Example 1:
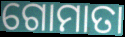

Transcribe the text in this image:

ଗୋମାତା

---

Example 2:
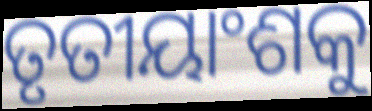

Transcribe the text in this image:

ତୃତୀୟାଂଶକୁ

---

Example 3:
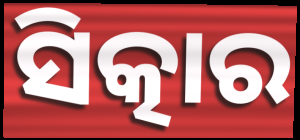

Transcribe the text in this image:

ସିତ୍କାର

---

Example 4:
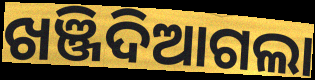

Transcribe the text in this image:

ଖଞ୍ଜିଦିଆଗଲା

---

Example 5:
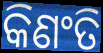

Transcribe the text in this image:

କିଣଂତି